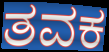
ತವಕ